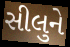
સીલુને